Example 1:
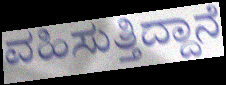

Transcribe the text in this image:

ವಹಿಸುತ್ತಿದ್ದಾನೆ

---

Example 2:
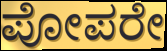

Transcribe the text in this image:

ಪೋಪರೇ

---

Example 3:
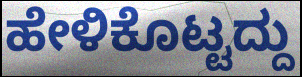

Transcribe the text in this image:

ಹೇಳಿಕೊಟ್ಟದ್ದು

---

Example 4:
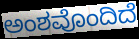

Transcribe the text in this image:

ಅಂಶವೊಂದಿದೆ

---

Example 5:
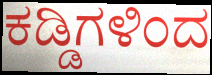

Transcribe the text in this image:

ಕಡ್ಡಿಗಳಿಂದ